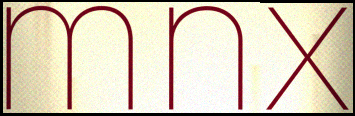
mnx